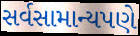
સર્વસામાન્યપણે